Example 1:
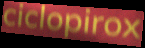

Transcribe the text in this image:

ciclopirox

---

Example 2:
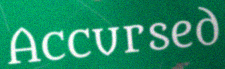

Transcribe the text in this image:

Accursed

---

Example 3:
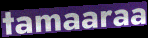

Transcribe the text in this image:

tamaaraa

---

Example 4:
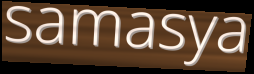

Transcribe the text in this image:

samasya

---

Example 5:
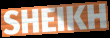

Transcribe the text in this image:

SHEIKH